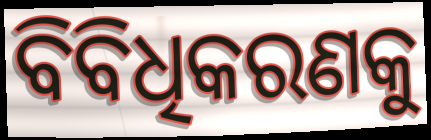
ବିବିଧିକରଣକୁ